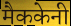
मैककेनी